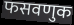
फसवणुक